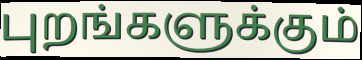
புறங்களுக்கும்